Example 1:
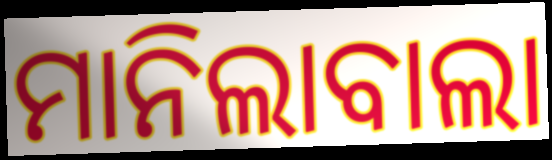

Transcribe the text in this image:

ମାନିଲାବାଲା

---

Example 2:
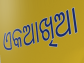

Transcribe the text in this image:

ଏକଆଖିଆ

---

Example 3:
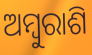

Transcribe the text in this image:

ଅମ୍ୱୁରାଶି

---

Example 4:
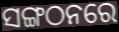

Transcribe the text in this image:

ସଙ୍ଗଠନରେ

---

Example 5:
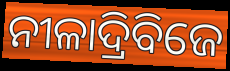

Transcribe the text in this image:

ନୀଳାଦ୍ରିବିଜେ